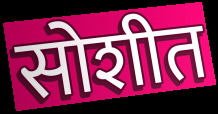
सोशीत